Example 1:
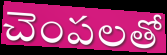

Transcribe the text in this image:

చెంపలతో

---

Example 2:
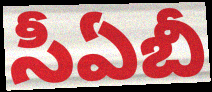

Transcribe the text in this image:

సీఏబీ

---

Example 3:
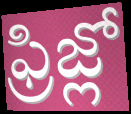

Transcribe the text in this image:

ఫ్రిజ్లో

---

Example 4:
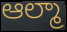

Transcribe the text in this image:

ఆల్మా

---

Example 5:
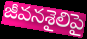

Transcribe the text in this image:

జీవనశైలిపై